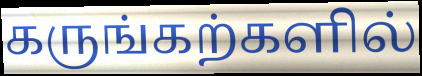
கருங்கற்களில்